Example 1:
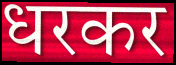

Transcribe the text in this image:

धरकर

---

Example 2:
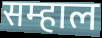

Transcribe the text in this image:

सम्हाल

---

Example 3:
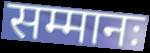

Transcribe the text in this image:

सम्मानः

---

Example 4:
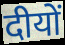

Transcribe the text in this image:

दीयों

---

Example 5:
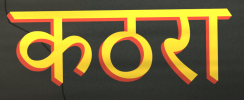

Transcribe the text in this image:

कठरा